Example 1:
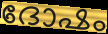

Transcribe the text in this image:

ദോഷം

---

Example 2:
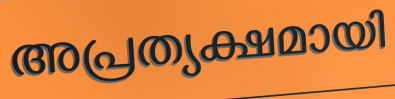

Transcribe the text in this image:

അപ്രത്യക്ഷമായി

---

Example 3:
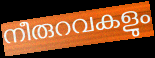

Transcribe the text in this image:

നീരുറവകളും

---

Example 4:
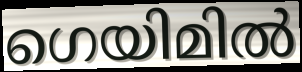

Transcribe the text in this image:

ഗെയിമിൽ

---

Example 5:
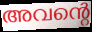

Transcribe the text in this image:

അവന്റെ